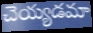
చెయ్యడమా